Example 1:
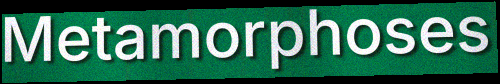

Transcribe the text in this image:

Metamorphoses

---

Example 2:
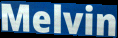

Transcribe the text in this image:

Melvin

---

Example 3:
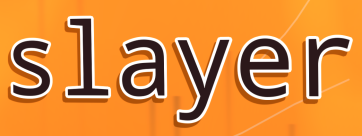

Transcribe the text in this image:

slayer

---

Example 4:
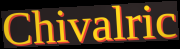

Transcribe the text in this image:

Chivalric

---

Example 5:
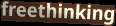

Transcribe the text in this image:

freethinking